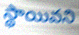
స్థాయివని